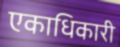
एकाधिकारी